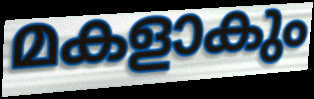
മകളാകും